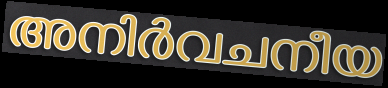
അനിർവചനീയ